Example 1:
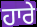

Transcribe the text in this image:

ਹਾਰੇ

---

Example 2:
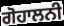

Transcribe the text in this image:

ਗੋਹਾਲਨੀ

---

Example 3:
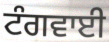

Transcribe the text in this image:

ਟੰਗਵਾਈ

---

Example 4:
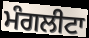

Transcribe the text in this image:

ਮੰਗਲੀਟਾ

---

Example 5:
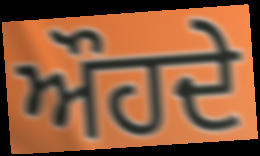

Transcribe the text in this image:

ਔਹਦੇ